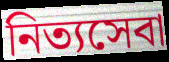
নিত্যসেবা